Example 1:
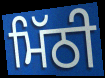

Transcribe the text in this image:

ਮਿੱਠੀ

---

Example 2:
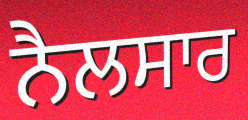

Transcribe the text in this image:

ਨੈਲਸਾਰ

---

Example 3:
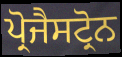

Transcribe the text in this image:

ਪ੍ਰੋਜੈਸਟ੍ਰੋਨ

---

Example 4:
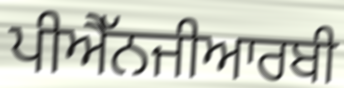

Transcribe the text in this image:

ਪੀਐੱਨਜੀਆਰਬੀ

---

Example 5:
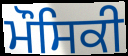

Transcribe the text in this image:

ਮੌਸਿਕੀ